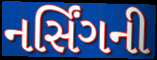
નર્સિંગની